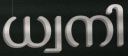
ധ്വനി